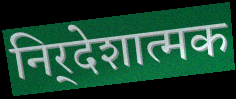
निर्देशात्मक